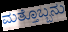
ಮತ್ತೊಬ್ಬನು